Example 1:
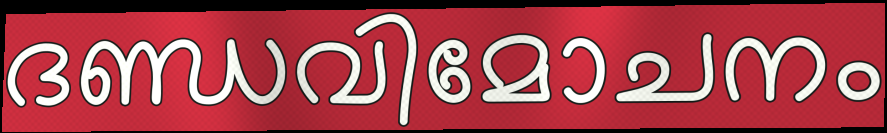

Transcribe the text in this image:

ദണ്ഡവിമോചനം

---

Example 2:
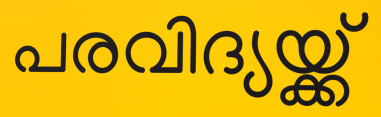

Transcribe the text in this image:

പരവിദ്യയ്ക്ക്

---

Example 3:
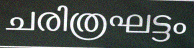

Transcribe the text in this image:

ചരിത്രഘട്ടം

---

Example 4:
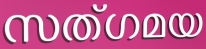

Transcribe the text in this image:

സത്ഗമയ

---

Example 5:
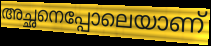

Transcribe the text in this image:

അച്ഛനെപ്പോലെയാണ്